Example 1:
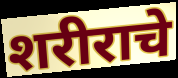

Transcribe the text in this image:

शरीराचे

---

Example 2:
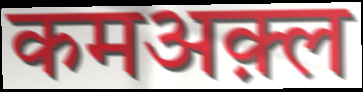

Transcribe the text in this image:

कमअक़्ल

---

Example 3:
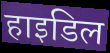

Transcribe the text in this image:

हाइडिल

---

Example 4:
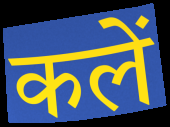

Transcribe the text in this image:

कलें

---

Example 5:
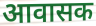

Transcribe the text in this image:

आवासक